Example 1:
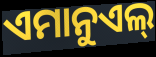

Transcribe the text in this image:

ଏମାନୁଏଲ୍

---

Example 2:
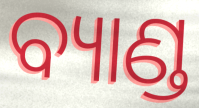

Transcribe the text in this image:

ବ୍ୟାଣ୍ଡ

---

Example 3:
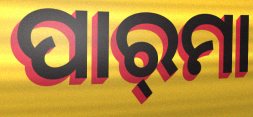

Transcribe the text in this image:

ପାର୍‌ମା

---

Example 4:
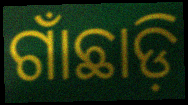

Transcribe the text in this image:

ଗାଁଛାଡ଼ି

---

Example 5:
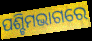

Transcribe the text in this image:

ପଶ୍ଚିମଭାଗରେ